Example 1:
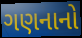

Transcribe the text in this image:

ગણનાનો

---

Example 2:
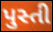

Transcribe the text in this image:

પુસ્તી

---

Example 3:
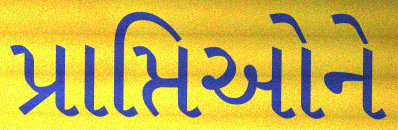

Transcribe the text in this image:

પ્રાપ્તિઓને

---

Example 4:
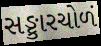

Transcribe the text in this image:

સઙ્કારચોળં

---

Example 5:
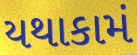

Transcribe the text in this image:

યથાકામં